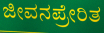
ಜೀವನಪ್ರೇರಿತ